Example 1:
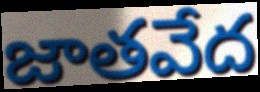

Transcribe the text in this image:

జాతవేద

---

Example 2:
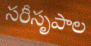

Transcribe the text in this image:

సరీసృపాల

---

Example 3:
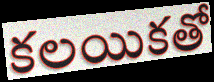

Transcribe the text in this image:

కలయికతో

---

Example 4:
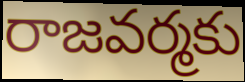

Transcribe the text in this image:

రాజవర్మకు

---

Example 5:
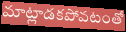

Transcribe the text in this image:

మాట్లాడకపోవటంతో